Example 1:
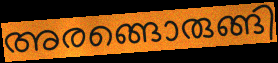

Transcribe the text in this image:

അരങ്ങൊരുങ്ങി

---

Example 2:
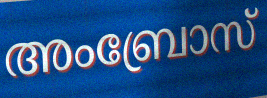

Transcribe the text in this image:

അംബ്രോസ്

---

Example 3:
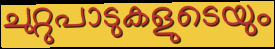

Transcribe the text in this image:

ചുറ്റുപാടുകളുടെയും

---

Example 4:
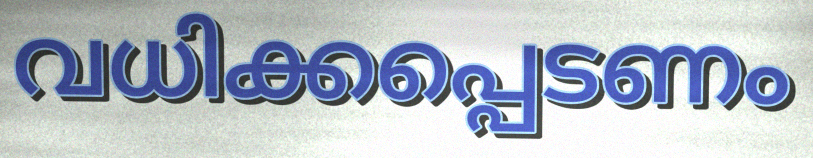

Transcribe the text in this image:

വധിക്കപ്പെടണം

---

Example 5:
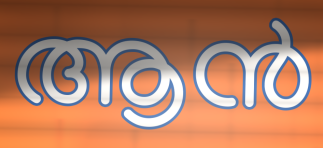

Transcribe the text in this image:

ആൻ